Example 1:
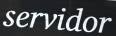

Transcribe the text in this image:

servidor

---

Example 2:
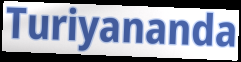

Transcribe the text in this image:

Turiyananda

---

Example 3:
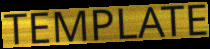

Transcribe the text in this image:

TEMPLATE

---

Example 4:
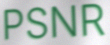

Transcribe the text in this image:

PSNR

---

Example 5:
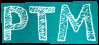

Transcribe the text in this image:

PTM